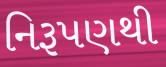
નિરૂપણથી